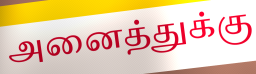
அனைத்துக்கு